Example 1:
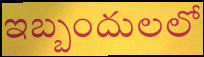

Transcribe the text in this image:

ఇబ్బందులలో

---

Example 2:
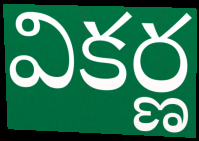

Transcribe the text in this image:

వికర్ణ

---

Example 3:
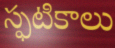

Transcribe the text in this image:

స్ఫటికాలు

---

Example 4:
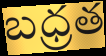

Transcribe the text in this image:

బధ్రత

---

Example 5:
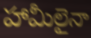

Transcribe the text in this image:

హామీలైనా